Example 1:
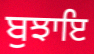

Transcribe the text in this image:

ਬੁਝਾਇ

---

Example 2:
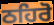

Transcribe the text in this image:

ਠਹਿਰੋ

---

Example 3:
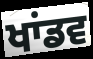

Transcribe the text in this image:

ਖਾਂਡਵ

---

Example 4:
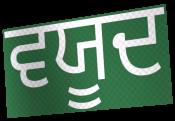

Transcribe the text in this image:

ਵਯੂਦ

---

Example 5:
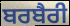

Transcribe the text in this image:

ਬਰਬੈਰੀ